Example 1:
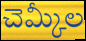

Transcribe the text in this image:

చెమ్కీల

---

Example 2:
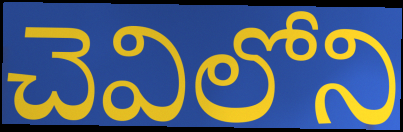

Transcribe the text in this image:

చెవిలోని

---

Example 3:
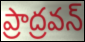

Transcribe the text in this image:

ప్రాద్రవన్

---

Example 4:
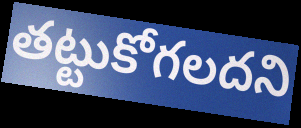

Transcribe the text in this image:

తట్టుకోగలదని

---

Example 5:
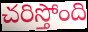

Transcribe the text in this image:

చరిస్తోంది